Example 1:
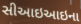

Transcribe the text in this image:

સીઆઇઆઇના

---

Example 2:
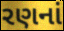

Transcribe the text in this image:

રણનાં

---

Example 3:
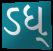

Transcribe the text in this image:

ઽધ્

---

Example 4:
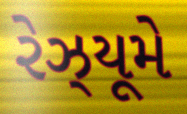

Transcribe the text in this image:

રેઝ્યૂમે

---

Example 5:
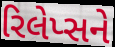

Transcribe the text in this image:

રિલેપ્સને